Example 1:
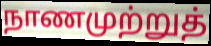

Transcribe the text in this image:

நாணமுற்றுத்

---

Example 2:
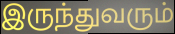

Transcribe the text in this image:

இருந்துவரும்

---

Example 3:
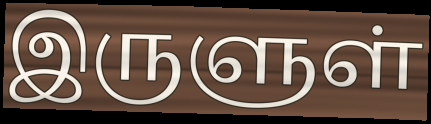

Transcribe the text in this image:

இருளுள்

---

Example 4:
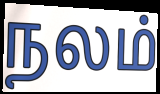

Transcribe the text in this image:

நலம்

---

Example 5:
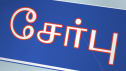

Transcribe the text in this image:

சேர்பு